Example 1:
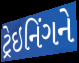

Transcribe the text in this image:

ટ્રેઇનિંગને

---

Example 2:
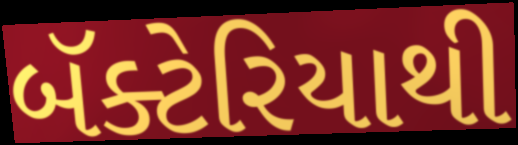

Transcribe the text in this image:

બૅક્ટેરિયાથી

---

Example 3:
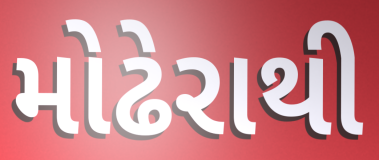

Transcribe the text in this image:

મોઢેરાથી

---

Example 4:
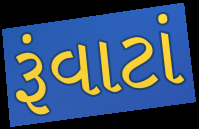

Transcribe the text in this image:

રૂંવાટાં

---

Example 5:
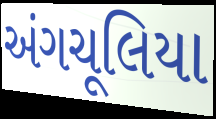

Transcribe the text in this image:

અંગચૂલિયા